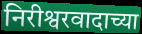
निरीश्वरवादाच्या